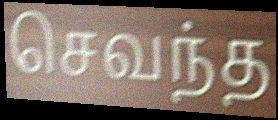
செவந்த